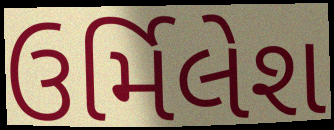
ઉર્મિલેશ